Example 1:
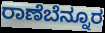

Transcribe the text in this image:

ರಾಣೆಬೆನ್ನೂರ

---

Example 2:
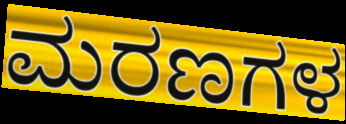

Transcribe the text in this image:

ಮರಣಗಳ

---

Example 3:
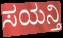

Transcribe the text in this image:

ಸಯನ್ತಿ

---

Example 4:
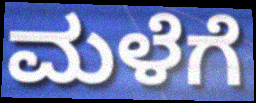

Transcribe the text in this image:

ಮಳೆಗೆ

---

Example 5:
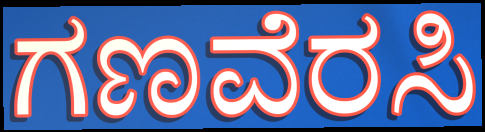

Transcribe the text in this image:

ಗಣವೆರಸಿ